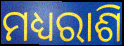
ମଧ୍ୟରାଶି